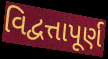
વિદ્વત્તાપૂર્ણ